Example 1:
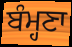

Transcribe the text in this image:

ਬੰਮ੍ਹਣਾ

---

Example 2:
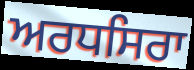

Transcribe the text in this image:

ਅਰਧਸਿਰਾ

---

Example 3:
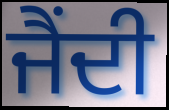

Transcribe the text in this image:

ਜੈਂਦੀ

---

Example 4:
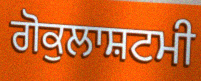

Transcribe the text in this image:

ਗੋਕੁਲਾਸ਼ਟਮੀ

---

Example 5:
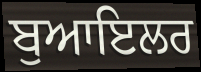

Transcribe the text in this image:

ਬੁਆਇਲਰ